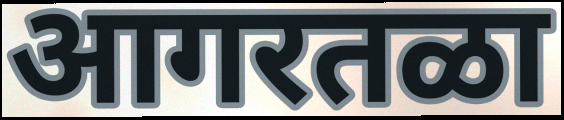
आगरतळा